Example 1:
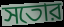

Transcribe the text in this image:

সতোর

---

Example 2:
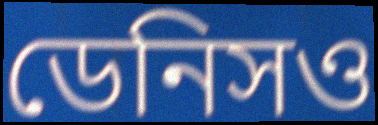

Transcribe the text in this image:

ডেনিসও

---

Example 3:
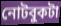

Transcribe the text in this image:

নোটবুকটা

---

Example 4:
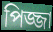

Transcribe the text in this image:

পিজ্জা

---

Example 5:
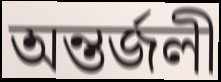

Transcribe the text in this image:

অন্তর্জলী